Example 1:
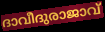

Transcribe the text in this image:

ദാവീദുരാജാവ്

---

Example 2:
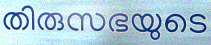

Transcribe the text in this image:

തിരുസഭയുടെ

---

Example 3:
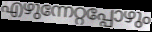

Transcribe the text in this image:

എഴുന്നേറ്റപ്പോഴും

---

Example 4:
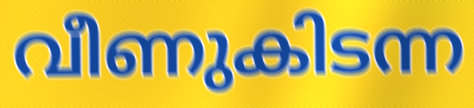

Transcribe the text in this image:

വീണുകിടന്ന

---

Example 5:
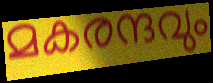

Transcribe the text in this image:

മകരന്ദവും